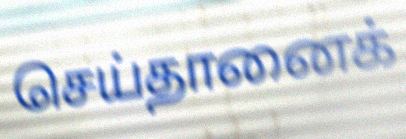
செய்தானைக்